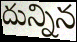
దున్నిన